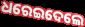
ଧରେଇଦେଲେ